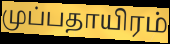
முப்பதாயிரம்